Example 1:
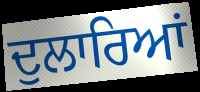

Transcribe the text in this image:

ਦੁਲਾਰਿਆਂ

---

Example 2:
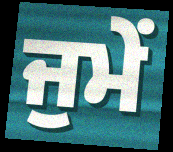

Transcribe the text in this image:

ਜੁਮੇਂ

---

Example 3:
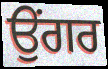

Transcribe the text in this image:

ਉਂਗਰ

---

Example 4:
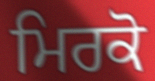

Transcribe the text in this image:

ਮਿਰਕੋ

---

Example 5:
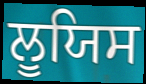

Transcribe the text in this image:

ਲੂਯਿਸ